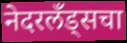
नेदरलँड्सचा